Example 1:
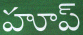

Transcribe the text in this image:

హూప్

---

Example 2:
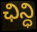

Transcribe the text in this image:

ఛిన్ధి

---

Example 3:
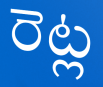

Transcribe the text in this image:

రెట్ల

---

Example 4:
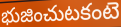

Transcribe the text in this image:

భుజించుటకంటె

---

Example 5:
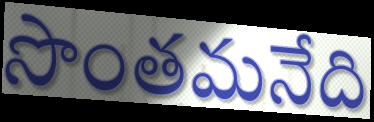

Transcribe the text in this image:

సొంతమనేది